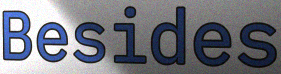
Besides